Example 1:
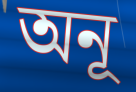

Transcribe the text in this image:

অনূ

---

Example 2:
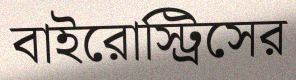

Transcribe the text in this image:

বাইরোস্ট্রিসের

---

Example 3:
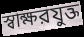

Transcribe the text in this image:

স্বাক্ষরযুক্ত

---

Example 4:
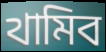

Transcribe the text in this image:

থামিব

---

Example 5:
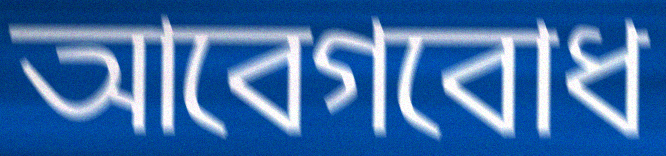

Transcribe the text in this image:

আবেগবোধ